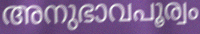
അനുഭാവപൂര്വം